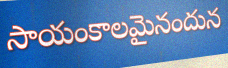
సాయంకాలమైనందున